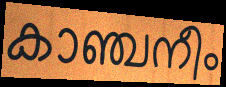
കാഞ്ചനീം